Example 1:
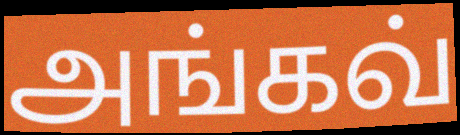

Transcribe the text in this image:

அங்கவ்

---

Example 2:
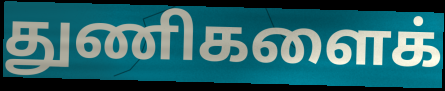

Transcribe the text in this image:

துணிகளைக்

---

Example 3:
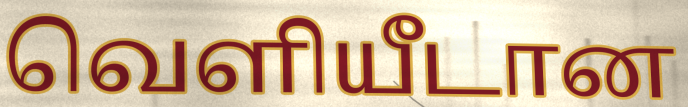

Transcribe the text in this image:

வெளியீடான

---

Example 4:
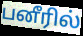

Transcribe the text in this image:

பனீரில்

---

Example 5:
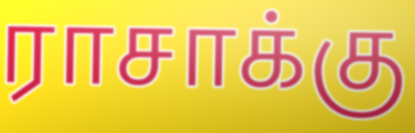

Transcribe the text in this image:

ராசாக்கு